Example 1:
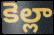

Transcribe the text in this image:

కెల్లా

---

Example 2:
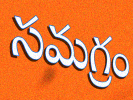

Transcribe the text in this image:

సమగ్రం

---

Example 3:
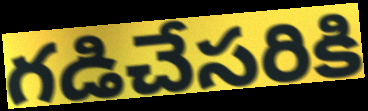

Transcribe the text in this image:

గడిచేసరికి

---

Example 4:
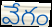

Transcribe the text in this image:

వేగం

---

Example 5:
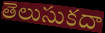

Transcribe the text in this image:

తెలుసుకదా